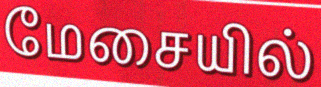
மேசையில்